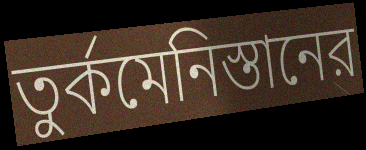
তুর্কমেনিস্তানের